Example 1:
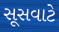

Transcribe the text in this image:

સૂસવાટે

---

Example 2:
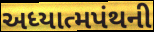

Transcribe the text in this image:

અધ્યાત્મપંથની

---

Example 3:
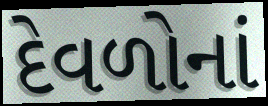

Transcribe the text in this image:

દેવળોનાં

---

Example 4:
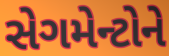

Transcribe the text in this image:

સેગમેન્ટોને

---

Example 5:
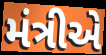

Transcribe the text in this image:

મંત્રીએ